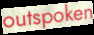
outspoken